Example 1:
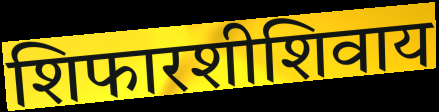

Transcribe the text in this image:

शिफारशीशिवाय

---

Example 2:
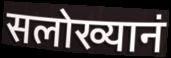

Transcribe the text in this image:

सलोख्यानं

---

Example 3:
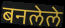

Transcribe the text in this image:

बनलेले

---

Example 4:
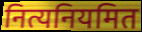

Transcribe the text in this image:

नित्यनियमित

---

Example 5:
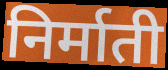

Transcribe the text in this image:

निर्माती